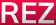
REZ